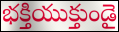
భక్తియుక్తుండై